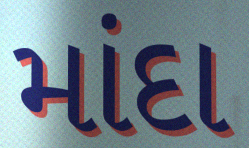
માંદા